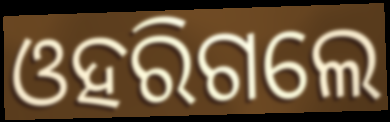
ଓହରିଗଲେ